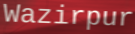
Wazirpur